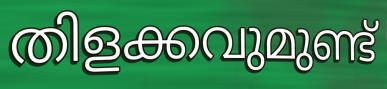
തിളക്കവുമുണ്ട്